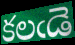
కలఁడె